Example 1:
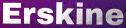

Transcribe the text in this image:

Erskine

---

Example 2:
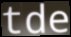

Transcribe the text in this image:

tde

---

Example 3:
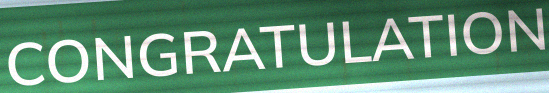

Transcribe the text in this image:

CONGRATULATION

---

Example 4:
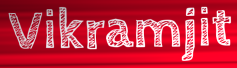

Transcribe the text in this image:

Vikramjit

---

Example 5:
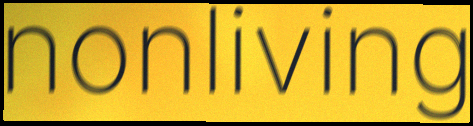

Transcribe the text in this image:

nonliving